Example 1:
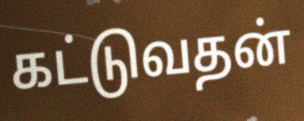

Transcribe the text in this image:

கட்டுவதன்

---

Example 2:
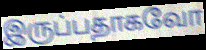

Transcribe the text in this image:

இருப்பதாகவோ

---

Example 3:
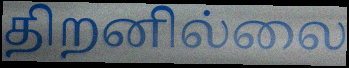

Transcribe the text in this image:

திறனில்லை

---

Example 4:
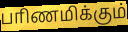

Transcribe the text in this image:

பரிணமிக்கும்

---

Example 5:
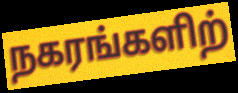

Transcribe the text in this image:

நகரங்களிற்